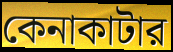
কেনাকাটার